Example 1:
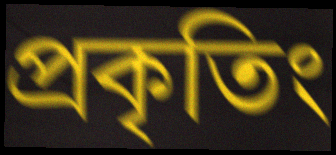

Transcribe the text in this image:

প্রকৃতিং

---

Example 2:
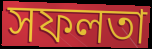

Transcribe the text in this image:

সফলতা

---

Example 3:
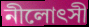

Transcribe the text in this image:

নীলোৎসী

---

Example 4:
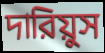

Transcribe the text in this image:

দারিয়ুস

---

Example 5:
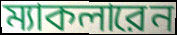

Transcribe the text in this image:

ম্যাকলারেন